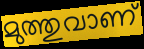
മുത്തുവാണ്